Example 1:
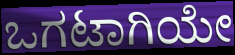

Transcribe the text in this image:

ಒಗಟಾಗಿಯೇ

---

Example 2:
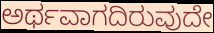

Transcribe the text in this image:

ಅರ್ಥವಾಗದಿರುವುದೇ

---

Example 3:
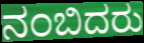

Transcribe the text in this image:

ನಂಬಿದರು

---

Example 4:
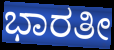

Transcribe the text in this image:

ಭಾರತೀ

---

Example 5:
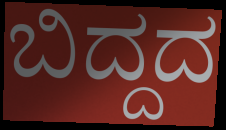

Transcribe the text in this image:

ಬಿದ್ದದ